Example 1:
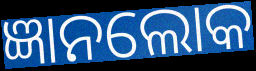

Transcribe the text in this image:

ଜ୍ଞାନଲୋକ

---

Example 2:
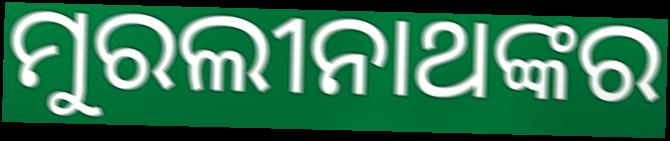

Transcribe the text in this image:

ମୁରଲୀନାଥଙ୍କର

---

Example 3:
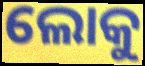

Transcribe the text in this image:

ଲୋକୁ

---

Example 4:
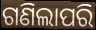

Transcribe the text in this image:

ଗଣିଲାପରି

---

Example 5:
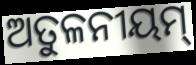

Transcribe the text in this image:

ଅତୁଳନୀୟମ୍